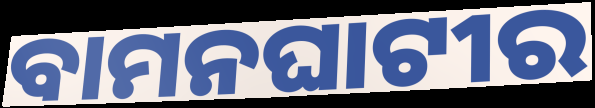
ବାମନଘାଟୀର